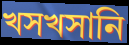
খসখসানি